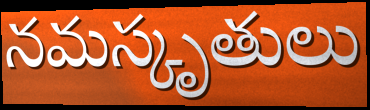
నమస్కృతులు